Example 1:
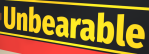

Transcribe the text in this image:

Unbearable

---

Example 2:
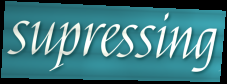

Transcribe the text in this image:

supressing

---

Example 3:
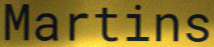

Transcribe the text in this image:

Martins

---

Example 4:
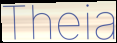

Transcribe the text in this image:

Theia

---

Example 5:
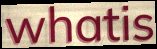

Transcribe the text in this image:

whatis